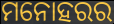
ମନୋହରର